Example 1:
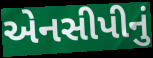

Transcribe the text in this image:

એનસીપીનું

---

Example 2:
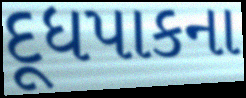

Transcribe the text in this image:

દૂધપાકના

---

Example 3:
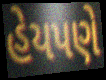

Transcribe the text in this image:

હેયપણે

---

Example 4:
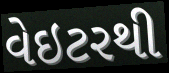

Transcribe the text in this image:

વેઇટરથી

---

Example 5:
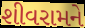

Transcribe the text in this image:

શીવરામને